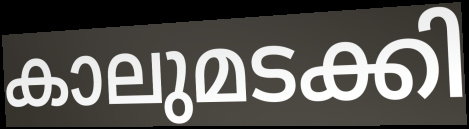
കാലുമടക്കി